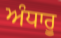
ਅੰਧਾਰੂ